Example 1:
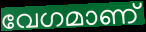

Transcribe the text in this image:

വേഗമാണ്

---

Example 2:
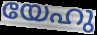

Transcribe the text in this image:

യേഹു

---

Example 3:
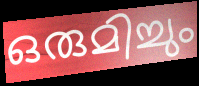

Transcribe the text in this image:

ഒരുമിച്ചും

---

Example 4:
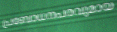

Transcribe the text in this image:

പ്രബോധനപരവുമായ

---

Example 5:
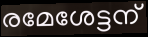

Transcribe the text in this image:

രമേശേട്ടന്